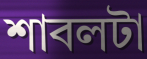
শাবলটা